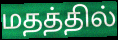
மதத்தில்